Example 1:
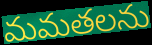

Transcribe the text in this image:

మమతలను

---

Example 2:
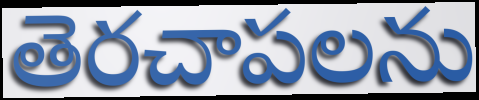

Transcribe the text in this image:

తెరచాపలను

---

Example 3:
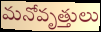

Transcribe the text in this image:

మనోవృత్తులు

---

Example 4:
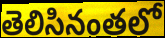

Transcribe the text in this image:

తెలిసినంతలో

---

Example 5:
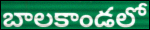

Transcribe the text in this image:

బాలకాండలో